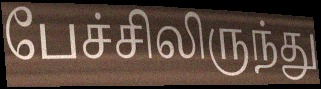
பேச்சிலிருந்து